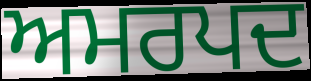
ਅਮਰਪਦ